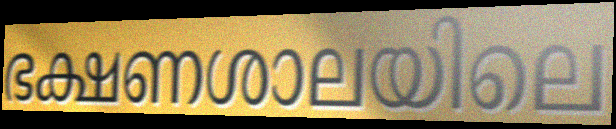
ഭക്ഷണശാലയിലെ